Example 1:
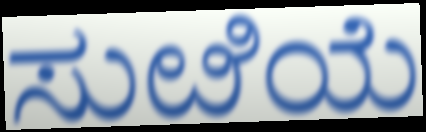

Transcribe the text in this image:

ಸುೞಿಯೆ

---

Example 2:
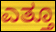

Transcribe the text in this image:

ಎತ್ತೂ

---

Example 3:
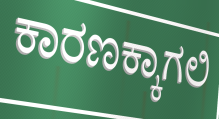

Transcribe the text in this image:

ಕಾರಣಕ್ಕಾಗಲಿ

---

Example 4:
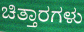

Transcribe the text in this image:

ಚಿತ್ತಾರಗಳು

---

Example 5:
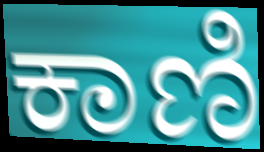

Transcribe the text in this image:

ಕಾಣಿ